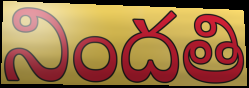
నిందతి